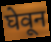
घेवून